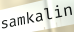
samkalin